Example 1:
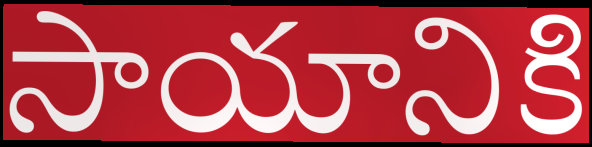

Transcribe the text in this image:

సాయానికి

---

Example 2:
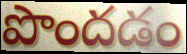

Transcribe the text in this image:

పొందడం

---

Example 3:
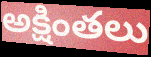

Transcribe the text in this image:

అక్షింతలు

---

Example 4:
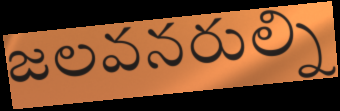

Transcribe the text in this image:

జలవనరుల్ని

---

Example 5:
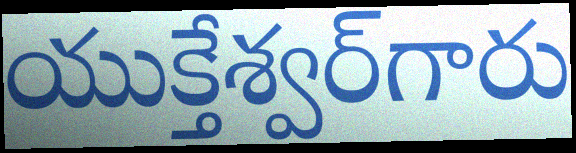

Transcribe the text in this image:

యుక్తేశ్వర్‌గారు